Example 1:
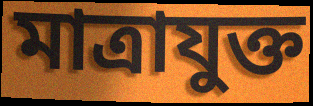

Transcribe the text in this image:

মাত্ৰাযুক্ত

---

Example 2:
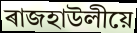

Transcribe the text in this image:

ৰাজহাউলীয়ে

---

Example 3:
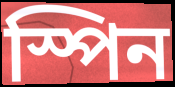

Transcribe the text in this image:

স্পিন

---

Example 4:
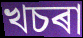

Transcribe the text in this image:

খচৰা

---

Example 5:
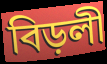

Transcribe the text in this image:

বিড়লী